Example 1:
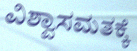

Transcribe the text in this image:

ವಿಶ್ವಾಸಮತಕ್ಕೆ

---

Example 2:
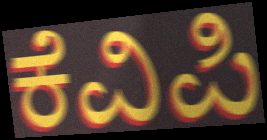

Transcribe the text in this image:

ಕೆವಿಪಿ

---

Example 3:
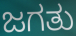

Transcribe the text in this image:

ಜಗತು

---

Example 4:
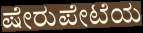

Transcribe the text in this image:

ಷೇರುಪೇಟೆಯ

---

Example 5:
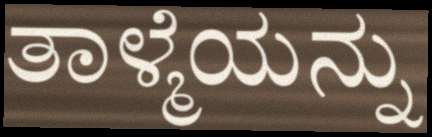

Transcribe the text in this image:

ತಾಳ್ಮೆಯನ್ನು